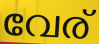
വേര്